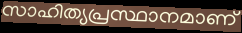
സാഹിത്യപ്രസ്ഥാനമാണ്